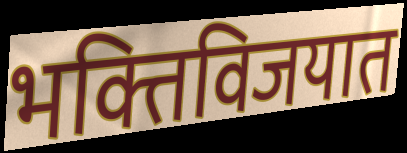
भक्तिविजयात